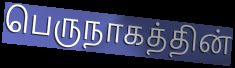
பெருநாகத்தின்